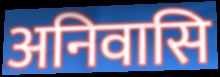
अनिवासि